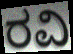
ರವಿ